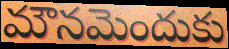
మౌనమెందుకు